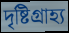
দৃষ্টিগ্রাহ্য